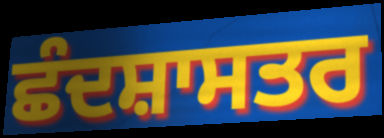
ਛੰਦਸ਼ਾਸਤਰ